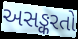
અસઙ્કરતો